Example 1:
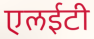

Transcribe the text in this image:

एलईटी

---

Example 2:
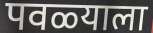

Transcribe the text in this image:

पवळ्याला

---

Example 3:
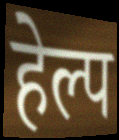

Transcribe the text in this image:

हेल्प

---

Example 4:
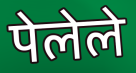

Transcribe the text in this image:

पेलेले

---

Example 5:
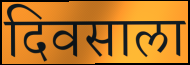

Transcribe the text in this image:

दिवसाला